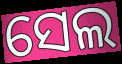
ସେଲ